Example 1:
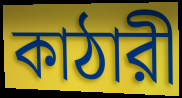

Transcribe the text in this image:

কাঠারী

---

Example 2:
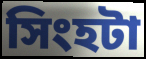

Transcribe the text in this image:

সিংহটা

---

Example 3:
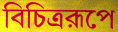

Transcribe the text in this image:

বিচিত্ররূপে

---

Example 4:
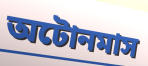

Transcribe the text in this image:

অটোনমাস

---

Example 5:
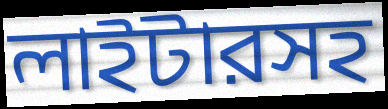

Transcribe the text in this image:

লাইটারসহ